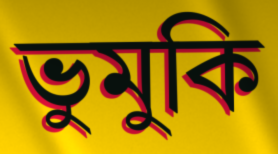
ভুমুকি